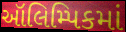
ઑલિમ્પિકમાં